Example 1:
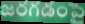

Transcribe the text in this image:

జరగడంపై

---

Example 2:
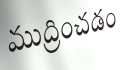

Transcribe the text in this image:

ముద్రించడం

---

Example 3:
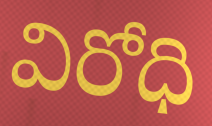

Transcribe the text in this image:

విరోధి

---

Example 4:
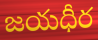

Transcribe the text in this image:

జయధీర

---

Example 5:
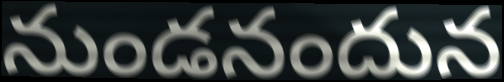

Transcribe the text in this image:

నుండనందున